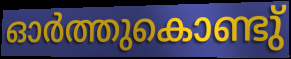
ഓർത്തുകൊണ്ടു്